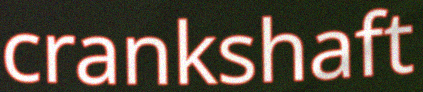
crankshaft